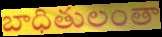
బాధితులంతా